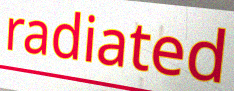
radiated